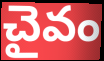
చైవం